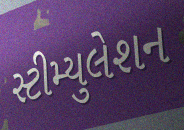
સ્ટીમ્યુલેશન